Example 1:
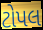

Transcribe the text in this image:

ટોપલ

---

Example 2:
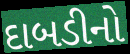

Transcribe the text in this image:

દાબડીનો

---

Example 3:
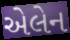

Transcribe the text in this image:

એલેન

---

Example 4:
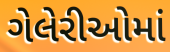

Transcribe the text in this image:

ગેલેરીઓમાં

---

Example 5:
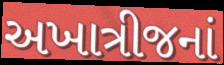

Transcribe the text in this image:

અખાત્રીજનાં